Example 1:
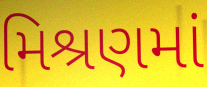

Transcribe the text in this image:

મિશ્રણમાં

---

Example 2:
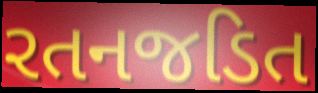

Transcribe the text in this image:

રતનજડિત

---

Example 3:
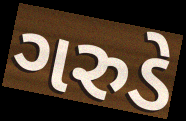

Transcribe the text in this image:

ગરુડે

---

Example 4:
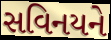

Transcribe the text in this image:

સવિનયને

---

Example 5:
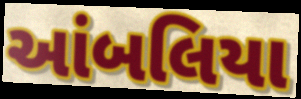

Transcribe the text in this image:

આંબલિયા